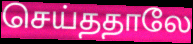
செய்ததாலே